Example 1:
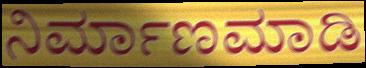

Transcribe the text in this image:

ನಿರ್ಮಾಣಮಾಡಿ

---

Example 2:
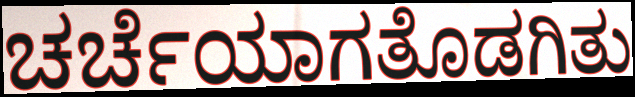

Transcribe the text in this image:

ಚರ್ಚೆಯಾಗತೊಡಗಿತು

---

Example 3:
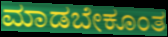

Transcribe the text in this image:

ಮಾಡಬೇಕೂಂತ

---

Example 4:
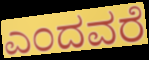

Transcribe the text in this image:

ಎಂದವರೆ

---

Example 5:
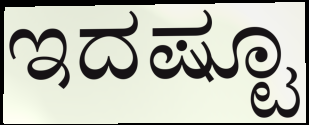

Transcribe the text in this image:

ಇದಷ್ಟೂ